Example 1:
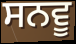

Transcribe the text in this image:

ਸਨਵੂ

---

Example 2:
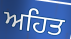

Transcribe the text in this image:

ਅਹਿਤ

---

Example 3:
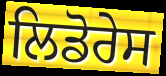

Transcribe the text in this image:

ਲਿਡੋਰੇਸ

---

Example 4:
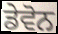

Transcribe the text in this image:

ਡੇਵੋਨ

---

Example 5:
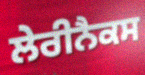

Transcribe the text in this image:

ਲੇਰੀਨੈਕਸ